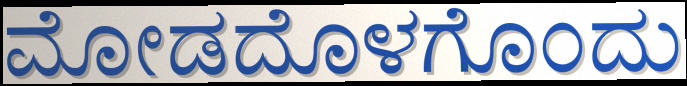
ಮೋಡದೊಳಗೊಂದು